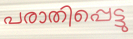
പരാതിപ്പെട്ടു